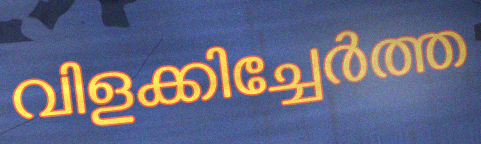
വിളക്കിച്ചേർത്ത